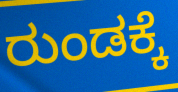
ರುಂಡಕ್ಕೆ